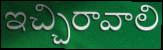
ఇచ్చిరావాలి